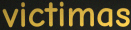
victimas